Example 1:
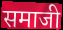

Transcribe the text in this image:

समाजी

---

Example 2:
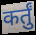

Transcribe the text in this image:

कर्तुं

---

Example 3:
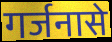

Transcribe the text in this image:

गर्जनासे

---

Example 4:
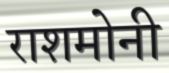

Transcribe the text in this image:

राशमोनी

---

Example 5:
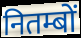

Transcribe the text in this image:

नितम्बों